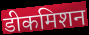
डीकमिशन